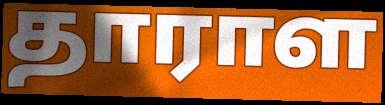
தாராள